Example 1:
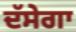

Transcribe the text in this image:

ਦੱਸੇਗਾ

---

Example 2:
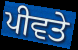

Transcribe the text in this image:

ਪੀਵਤੇ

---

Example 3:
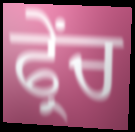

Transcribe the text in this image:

ਫ੍ਰੇਂਚ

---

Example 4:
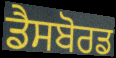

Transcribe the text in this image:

ਡੈਸਬੋਰਡ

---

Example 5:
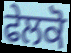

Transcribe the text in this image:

ਫੇਲਕੋ